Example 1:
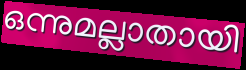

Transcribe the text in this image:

ഒന്നുമല്ലാതായി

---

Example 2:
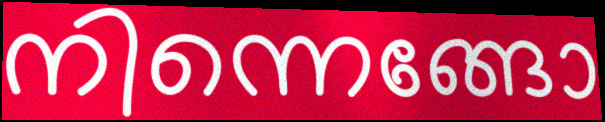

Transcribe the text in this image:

നിന്നെങ്ങോ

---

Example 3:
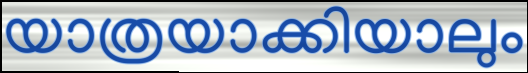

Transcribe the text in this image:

യാത്രയാക്കിയാലും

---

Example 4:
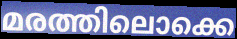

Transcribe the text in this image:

മരത്തിലൊക്കെ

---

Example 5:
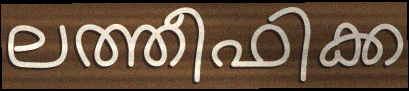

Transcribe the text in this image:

ലത്തീഫിക്ക